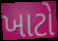
ખાટો